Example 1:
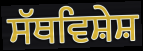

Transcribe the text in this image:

ਸੱਥਵਿਸ਼ੇਸ਼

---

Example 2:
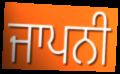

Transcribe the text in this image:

ਜਾਪਨੀ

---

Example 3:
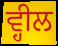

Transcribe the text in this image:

ਵ੍ਹੀਲ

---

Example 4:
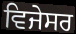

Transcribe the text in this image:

ਵਿਜੇਸਰ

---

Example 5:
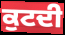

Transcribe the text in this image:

ਕੁਟਦੀ